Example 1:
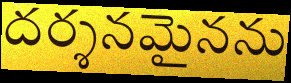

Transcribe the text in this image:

దర్శనమైనను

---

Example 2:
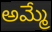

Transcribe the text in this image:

అమ్మే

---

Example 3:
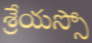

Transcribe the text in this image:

శ్రేయస్సో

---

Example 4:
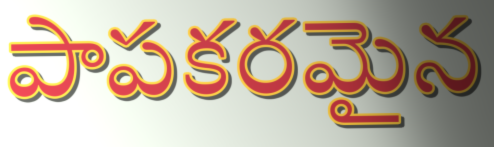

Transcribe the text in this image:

పాపకరమైన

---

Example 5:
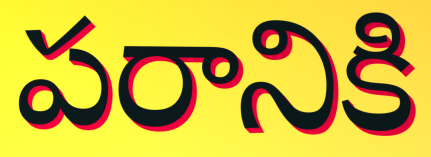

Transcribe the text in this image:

పరానికి